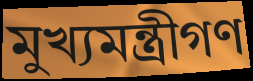
মুখ্যমন্ত্রীগণ